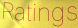
Ratings